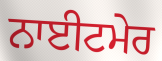
ਨਾਈਟਮੇਰ